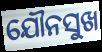
ଯୌନସୁଖ